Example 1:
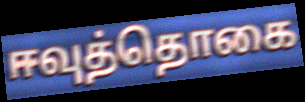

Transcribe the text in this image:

ஈவுத்தொகை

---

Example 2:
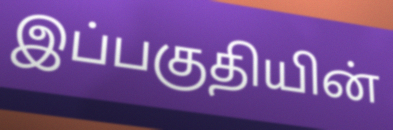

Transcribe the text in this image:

இப்பகுதியின்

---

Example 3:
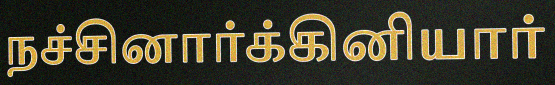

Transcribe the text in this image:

நச்சினார்க்கினியார்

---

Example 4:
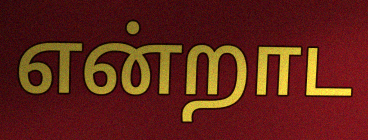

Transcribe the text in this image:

என்றாட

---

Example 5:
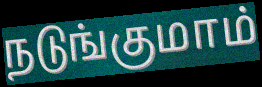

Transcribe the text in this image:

நடுங்குமாம்